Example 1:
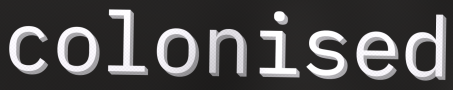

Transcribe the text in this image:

colonised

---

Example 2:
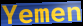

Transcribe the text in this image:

Yemen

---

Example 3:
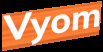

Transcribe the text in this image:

Vyom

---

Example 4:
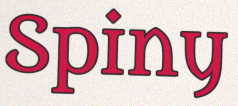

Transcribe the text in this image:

Spiny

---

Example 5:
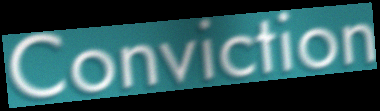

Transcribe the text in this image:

Conviction